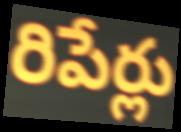
రిపేర్లు